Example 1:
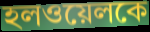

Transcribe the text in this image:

হলওয়েলকে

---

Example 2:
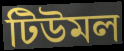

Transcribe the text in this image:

টিউমল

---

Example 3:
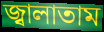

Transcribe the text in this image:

জ্বালাতাম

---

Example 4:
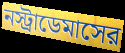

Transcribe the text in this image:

নস্ট্রাডেমাসের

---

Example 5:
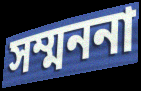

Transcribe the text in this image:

সম্মননা